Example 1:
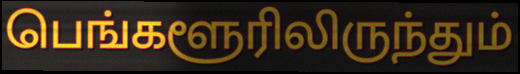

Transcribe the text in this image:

பெங்களூரிலிருந்தும்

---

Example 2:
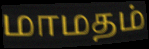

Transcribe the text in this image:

மாமதம்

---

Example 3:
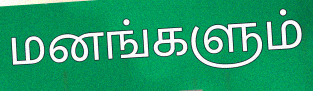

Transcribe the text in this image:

மனங்களும்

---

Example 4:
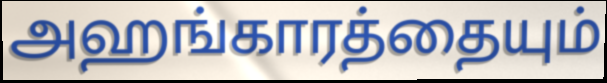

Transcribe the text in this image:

அஹங்காரத்தையும்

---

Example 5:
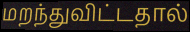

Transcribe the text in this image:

மறந்துவிட்டதால்